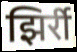
झिर्री